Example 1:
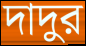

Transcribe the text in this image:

দাদুর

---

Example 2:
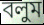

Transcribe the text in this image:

বলুম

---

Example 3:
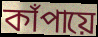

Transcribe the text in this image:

কাঁপায়ে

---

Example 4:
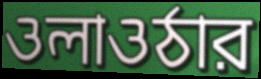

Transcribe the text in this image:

ওলাওঠার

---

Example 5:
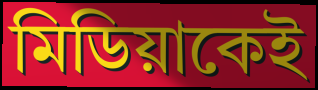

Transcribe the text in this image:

মিডিয়াকেই